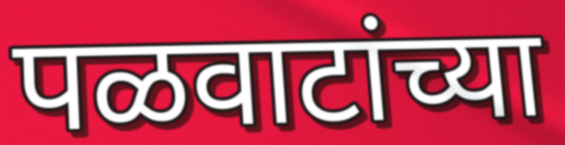
पळवाटांच्या